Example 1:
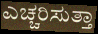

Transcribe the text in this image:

ಎಚ್ಚರಿಸುತ್ತಾ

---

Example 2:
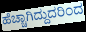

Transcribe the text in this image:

ಹೆಚ್ಚಾಗಿದ್ದುದರಿಂದ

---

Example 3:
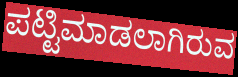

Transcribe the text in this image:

ಪಟ್ಟಿಮಾಡಲಾಗಿರುವ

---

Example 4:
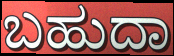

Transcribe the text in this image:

ಬಹುದಾ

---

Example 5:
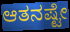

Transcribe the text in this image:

ಆತನಷ್ಟೇ